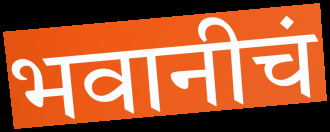
भवानीचं